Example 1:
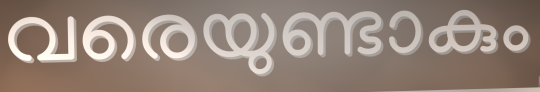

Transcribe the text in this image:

വരെയുണ്ടാകും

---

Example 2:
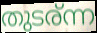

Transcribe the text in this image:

തുടര്ന്ന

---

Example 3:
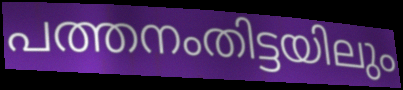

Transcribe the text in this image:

പത്തനംതിട്ടയിലും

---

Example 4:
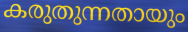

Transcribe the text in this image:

കരുതുന്നതായും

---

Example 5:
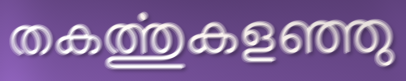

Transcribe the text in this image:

തകൎത്തുകളഞ്ഞു